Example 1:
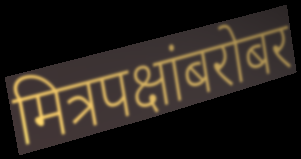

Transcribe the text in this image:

मित्रपक्षांबरोबर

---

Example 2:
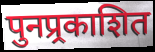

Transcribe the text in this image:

पुनप्र्रकाशित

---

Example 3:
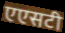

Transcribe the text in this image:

एएसटी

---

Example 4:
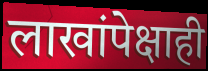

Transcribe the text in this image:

लाखांपेक्षाही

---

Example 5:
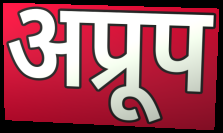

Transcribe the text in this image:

अप्रूप